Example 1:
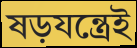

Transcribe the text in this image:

ষড়যন্ত্রেই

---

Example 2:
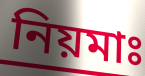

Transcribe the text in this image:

নিয়মাঃ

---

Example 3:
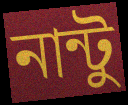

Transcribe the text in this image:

নান্টু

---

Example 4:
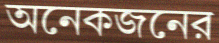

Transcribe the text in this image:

অনেকজনের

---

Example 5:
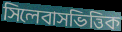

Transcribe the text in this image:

সিলেবাসভিত্তিক